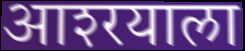
आश्रयाला